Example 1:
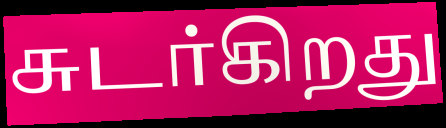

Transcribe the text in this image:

சுடர்கிறது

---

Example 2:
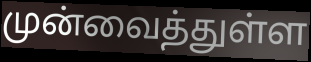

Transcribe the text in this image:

முன்வைத்துள்ள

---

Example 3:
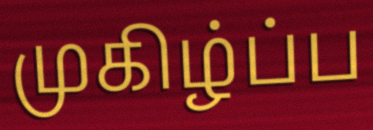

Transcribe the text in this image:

முகிழ்ப்ப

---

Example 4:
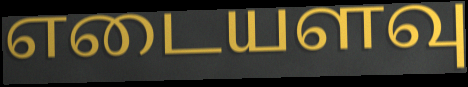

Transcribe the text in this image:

எடையளவு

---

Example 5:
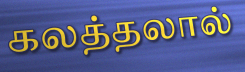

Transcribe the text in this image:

கலத்தலால்